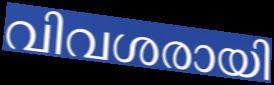
വിവശരായി